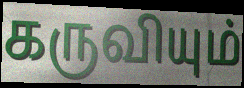
கருவியும்